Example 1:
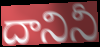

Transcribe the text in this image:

దానినీ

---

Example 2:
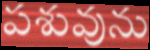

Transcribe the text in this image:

పశువును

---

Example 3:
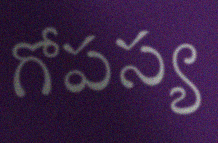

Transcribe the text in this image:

గోపస్య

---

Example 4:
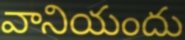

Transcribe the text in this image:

వానియందు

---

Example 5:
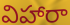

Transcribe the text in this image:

విహారా